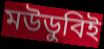
মউডুবিই